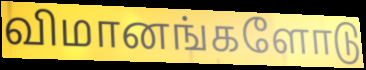
விமானங்களோடு